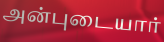
அன்புடையார்